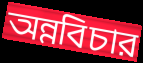
অন্নবিচার